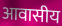
आवासीय